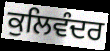
ਕੁਲਿਵੰਦਰ